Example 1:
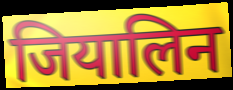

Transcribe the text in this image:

जियालिन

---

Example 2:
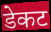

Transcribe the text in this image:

डेकट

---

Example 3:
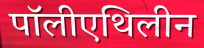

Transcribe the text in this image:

पॉलीएथिलीन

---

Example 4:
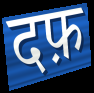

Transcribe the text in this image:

दफ़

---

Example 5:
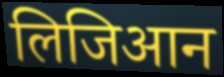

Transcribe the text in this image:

लिजिआन